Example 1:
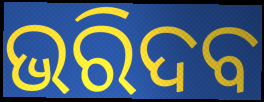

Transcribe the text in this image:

ଭରିଦବ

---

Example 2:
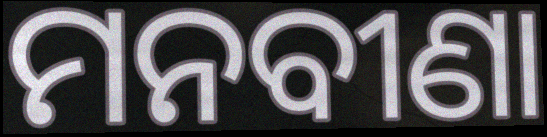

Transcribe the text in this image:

ମନବୀଣା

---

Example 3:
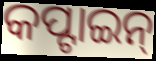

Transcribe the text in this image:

କପ୍ଟାଇନ୍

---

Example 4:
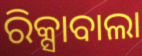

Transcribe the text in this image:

ରିକ୍ସାବାଲା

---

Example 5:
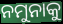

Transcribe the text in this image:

ନମୁନାକୁ